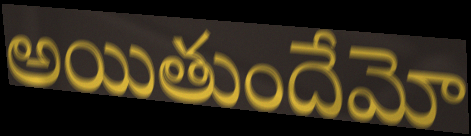
అయితుందేమో